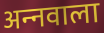
अन्नवाला